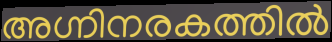
അഗ്നിനരകത്തിൽ